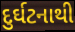
દુર્ઘટનાથી